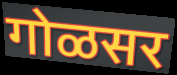
गोळसर